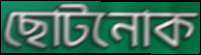
ছোটনোক